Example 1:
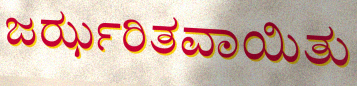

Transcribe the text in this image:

ಜರ್ಝರಿತವಾಯಿತು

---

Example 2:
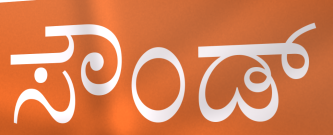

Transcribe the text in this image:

ಸೌಂಡ್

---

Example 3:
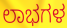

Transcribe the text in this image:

ಲಾಭಗಳ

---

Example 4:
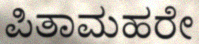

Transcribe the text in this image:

ಪಿತಾಮಹರೇ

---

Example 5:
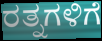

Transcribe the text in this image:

ರತ್ನಗಳಿಗೆ